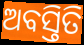
ଅବସ୍ତିତି